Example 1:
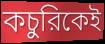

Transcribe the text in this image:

কচুরিকেই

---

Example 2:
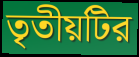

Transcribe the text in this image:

তৃতীয়টির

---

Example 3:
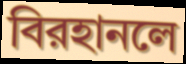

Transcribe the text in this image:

বিরহানলে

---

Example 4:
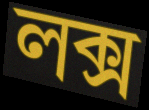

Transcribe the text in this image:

লক্স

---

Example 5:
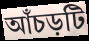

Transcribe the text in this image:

আঁচড়টি